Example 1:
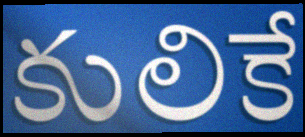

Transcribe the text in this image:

కులికే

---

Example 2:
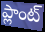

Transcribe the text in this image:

ప్లాంట్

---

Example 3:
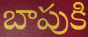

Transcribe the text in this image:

బాపుకి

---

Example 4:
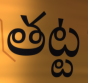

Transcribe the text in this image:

తట్ట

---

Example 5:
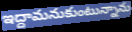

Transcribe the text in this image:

ఇద్దామనుకుంటున్నాను